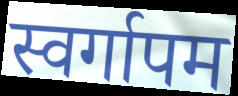
स्वर्गापम